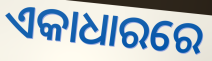
ଏକାଧାରରେ